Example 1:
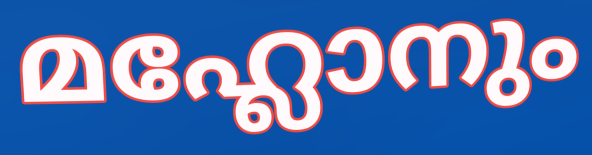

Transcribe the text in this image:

മഹ്ലോനും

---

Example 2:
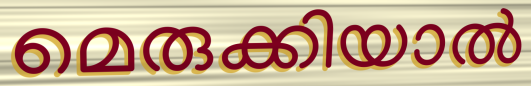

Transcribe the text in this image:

മെരുക്കിയാൽ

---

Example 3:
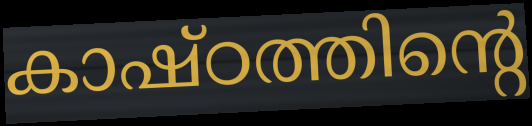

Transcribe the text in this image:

കാഷ്ഠത്തിന്റെ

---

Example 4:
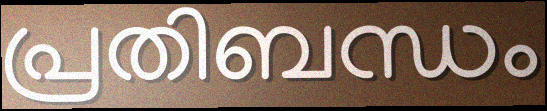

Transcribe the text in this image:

പ്രതിബന്ധം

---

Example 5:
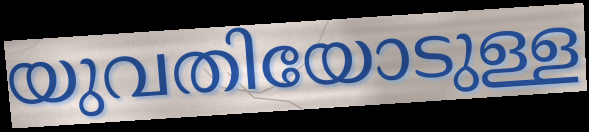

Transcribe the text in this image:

യുവതിയോടുള്ള